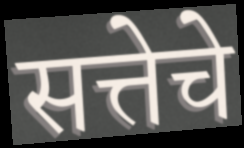
सत्तेचे